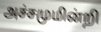
அச்சமுமின்றி